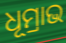
ଧୂମ୍ରାଭ